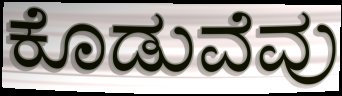
ಕೊಡುವೆವು